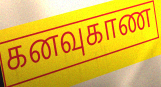
கனவுகாண